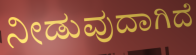
ನೀಡುವುದಾಗಿದೆ